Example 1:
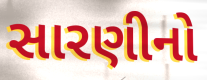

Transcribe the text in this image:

સારણીનો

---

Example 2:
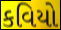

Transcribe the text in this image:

કવિયો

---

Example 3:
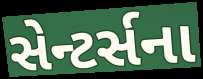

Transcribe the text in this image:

સેન્ટર્સના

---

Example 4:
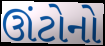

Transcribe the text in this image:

ઊંટોનો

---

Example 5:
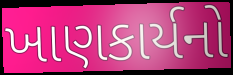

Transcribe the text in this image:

ખાણકાર્યનો